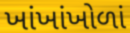
ખાંખાંખોળાં